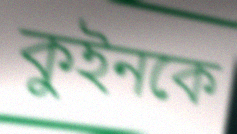
কুইনকে